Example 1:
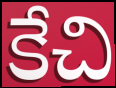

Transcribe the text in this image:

కేచి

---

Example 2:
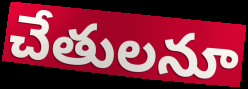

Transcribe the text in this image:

చేతులనూ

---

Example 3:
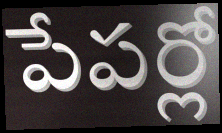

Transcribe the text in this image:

పేపర్లో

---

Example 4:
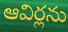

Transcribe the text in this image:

ఆవిర్లను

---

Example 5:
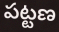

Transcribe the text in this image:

పట్టణ